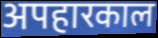
अपहारकाल